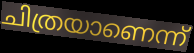
ചിത്രയാണെന്ന്